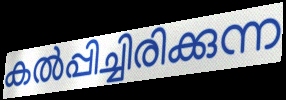
കൽപ്പിച്ചിരിക്കുന്ന